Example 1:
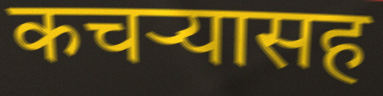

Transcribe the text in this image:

कचऱ्यासह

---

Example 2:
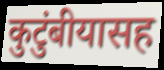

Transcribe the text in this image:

कुटुंबीयासह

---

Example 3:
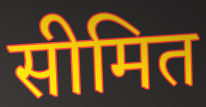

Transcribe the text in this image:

सीमित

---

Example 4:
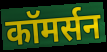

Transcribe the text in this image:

कॉमर्सन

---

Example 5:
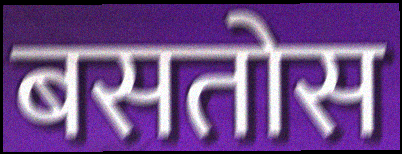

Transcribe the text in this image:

बसतोस